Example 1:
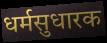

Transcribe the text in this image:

धर्मसुधारक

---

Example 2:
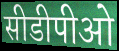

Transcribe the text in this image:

सीडीपीओ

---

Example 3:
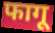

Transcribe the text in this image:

फागू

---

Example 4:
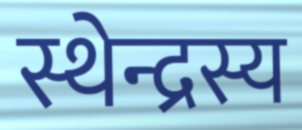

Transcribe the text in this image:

स्थेन्द्रस्य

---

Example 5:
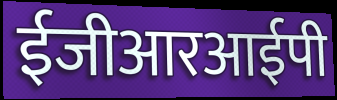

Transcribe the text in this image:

ईजीआरआईपी